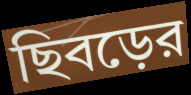
ছিবড়ের